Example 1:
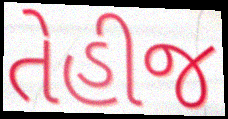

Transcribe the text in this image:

તેહીજ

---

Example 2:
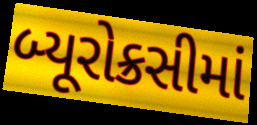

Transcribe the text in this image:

બ્યૂરોક્રસીમાં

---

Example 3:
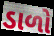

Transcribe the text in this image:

ડાળો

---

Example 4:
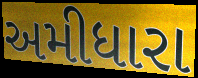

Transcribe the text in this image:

અમીધારા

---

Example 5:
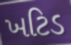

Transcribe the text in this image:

ખટિડ